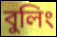
বুলিং